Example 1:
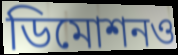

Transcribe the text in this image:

ডিমোশনও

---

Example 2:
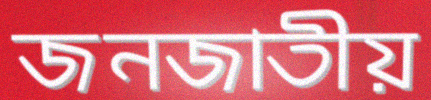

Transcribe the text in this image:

জনজাতীয়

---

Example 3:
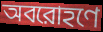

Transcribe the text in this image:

অবরোহণে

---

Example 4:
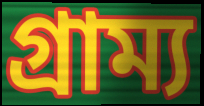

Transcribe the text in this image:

গ্রাম্য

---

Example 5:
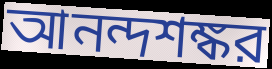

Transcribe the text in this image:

আনন্দশঙ্কর